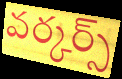
వర్కర్స్